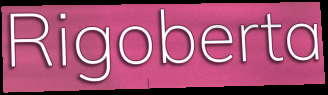
Rigoberta